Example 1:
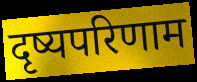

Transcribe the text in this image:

दृष्यपरिणाम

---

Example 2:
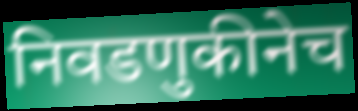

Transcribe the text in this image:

निवडणुकीनेच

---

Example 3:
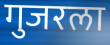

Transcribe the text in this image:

गुजरला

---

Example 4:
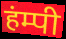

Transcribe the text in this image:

हंम्पी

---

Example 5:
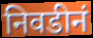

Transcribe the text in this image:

निवडीनं